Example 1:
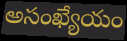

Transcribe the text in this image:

అసంఖ్యేయం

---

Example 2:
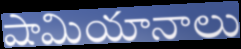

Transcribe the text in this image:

షామియానాలు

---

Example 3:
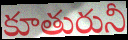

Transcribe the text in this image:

కూతురునీ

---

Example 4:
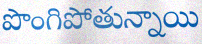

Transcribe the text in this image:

పొంగిపోతున్నాయి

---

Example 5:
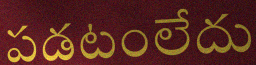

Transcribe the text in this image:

పడటంలేదు